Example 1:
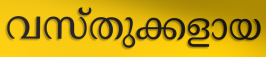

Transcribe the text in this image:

വസ്തുക്കളായ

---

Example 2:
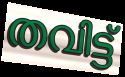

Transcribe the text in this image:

തവിട്ട്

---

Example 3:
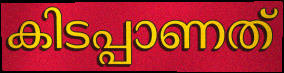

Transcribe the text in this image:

കിടപ്പാണത്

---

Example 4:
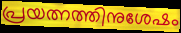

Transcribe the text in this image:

പ്രയത്നത്തിനുശേഷം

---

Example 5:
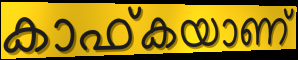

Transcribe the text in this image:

കാഫ്കയാണ്